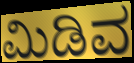
ಮಿಡಿವ